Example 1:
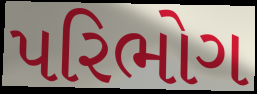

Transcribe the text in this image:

પરિભોગ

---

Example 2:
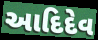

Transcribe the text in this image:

આદિદેવ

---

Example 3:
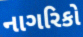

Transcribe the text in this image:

નાગરિકો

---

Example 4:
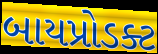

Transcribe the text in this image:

બાયપ્રોડક્ટ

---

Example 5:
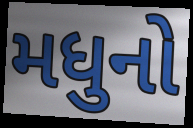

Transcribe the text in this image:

મધુનો